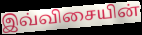
இவ்விசையின்